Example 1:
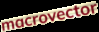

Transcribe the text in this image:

macrovector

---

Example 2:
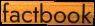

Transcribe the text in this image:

factbook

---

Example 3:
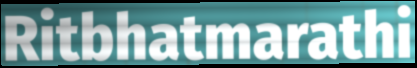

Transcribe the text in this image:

Ritbhatmarathi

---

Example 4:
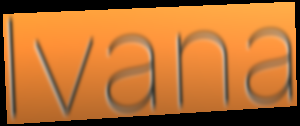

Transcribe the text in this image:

Ivana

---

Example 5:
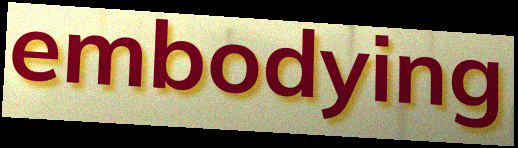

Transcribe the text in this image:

embodying